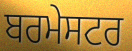
ਬਰਮੇਸਟਰ